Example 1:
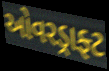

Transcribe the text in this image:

ઓવરડ્રાફ્ટ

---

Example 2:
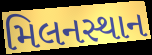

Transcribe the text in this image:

મિલનસ્થાન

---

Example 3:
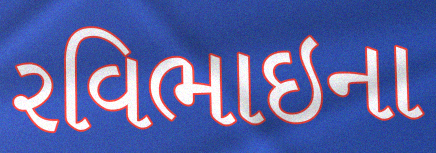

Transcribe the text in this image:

રવિભાઇના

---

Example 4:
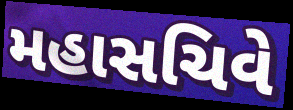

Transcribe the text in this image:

મહાસચિવે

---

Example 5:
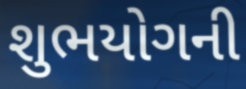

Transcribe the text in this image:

શુભયોગની